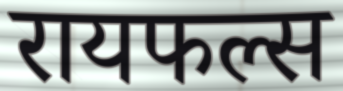
रायफल्स